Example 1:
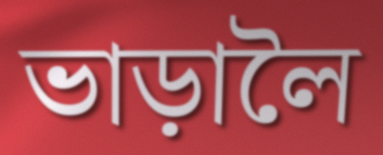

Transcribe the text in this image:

ভাড়ালৈ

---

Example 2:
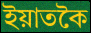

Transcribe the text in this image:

ইয়াতকৈ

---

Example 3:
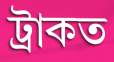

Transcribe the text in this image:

ট্ৰাকত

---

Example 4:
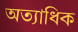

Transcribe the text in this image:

অত্যাধিক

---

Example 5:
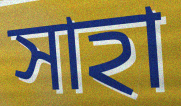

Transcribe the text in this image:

সাহা